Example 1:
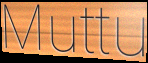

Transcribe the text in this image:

Muttu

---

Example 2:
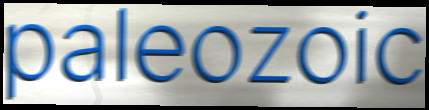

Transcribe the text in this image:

paleozoic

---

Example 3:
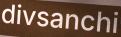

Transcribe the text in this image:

divsanchi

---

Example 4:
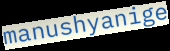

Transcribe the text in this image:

manushyanige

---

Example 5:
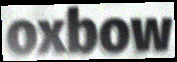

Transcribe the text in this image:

oxbow